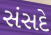
સંસદે